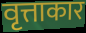
वृत्ताकार